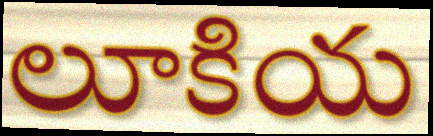
లూకియ